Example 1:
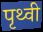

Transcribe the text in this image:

पृथ्वी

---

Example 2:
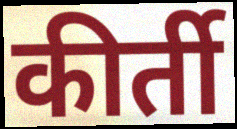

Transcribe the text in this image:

कीर्ती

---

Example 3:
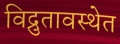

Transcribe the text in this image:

विद्रुतावस्थेत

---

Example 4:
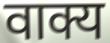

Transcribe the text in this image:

वाक्य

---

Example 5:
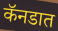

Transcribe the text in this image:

कॅनडात